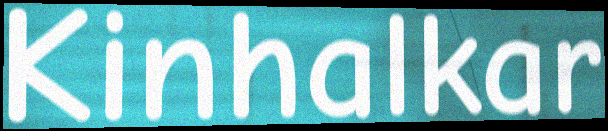
Kinhalkar